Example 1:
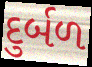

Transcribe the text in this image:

દુર્બળ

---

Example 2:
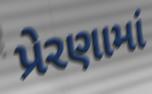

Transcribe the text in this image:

પ્રેરણામાં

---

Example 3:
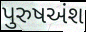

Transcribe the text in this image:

પુરુષઅંશ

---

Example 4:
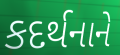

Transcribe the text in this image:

કદર્થનાને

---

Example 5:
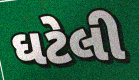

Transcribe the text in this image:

ઘટેલી